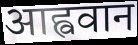
आह्ववान